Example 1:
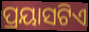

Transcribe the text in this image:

ପ୍ରୟାସଟିଏ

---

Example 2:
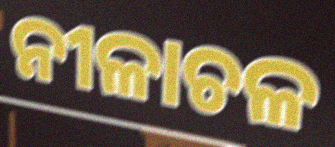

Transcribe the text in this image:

ନୀଳାଚଳ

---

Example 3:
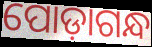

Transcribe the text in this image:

ପୋଡ଼ାଗନ୍ଧ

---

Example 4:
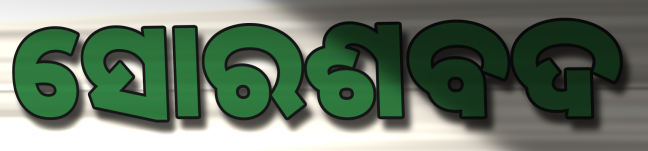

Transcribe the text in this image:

ସୋରଶବଦ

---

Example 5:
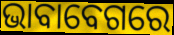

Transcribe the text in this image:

ଭାବାବେଗରେ